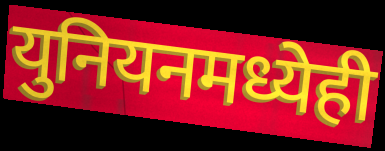
युनियनमध्येही